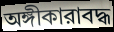
অঙ্গীকারাবদ্ধ